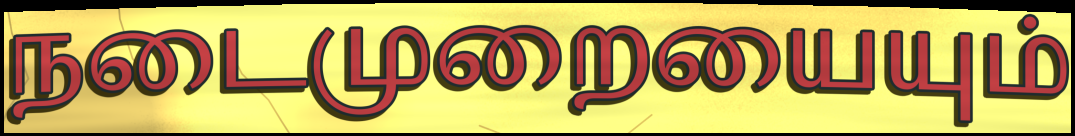
நடைமுறையையும்